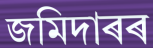
জমিদাৰৰ